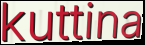
kuttina